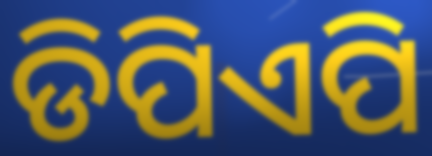
ଡିପିଏପି